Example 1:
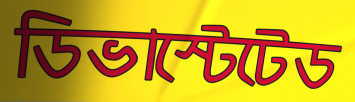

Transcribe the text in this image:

ডিভাস্টেটেড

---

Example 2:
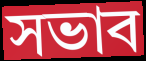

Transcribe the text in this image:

সভাব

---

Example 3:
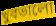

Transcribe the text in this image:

খুবভালো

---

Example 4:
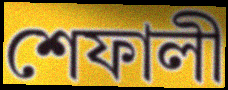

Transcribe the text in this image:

শেফালী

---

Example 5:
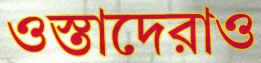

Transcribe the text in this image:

ওস্তাদেরাও